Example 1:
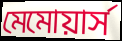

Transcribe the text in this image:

মেমোয়ার্স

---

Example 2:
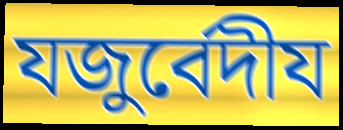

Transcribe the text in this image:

যজুর্বেদীয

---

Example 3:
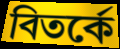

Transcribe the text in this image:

বিতর্কে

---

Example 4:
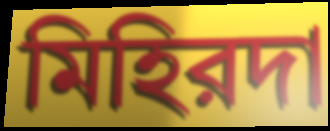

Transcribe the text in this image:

মিহিরদা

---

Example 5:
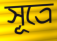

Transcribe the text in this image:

সূত্রে